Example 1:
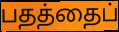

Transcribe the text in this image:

பதத்தைப்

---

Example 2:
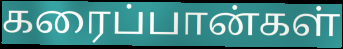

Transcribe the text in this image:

கரைப்பான்கள்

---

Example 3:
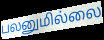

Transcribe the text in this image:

பலனுமில்லை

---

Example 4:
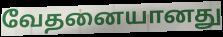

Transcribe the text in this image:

வேதனையானது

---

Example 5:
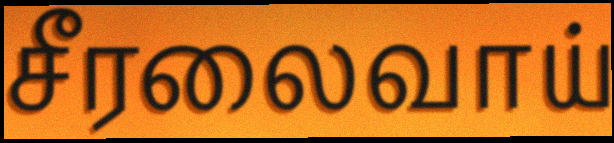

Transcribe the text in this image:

சீரலைவாய்